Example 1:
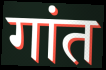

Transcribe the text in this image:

गांत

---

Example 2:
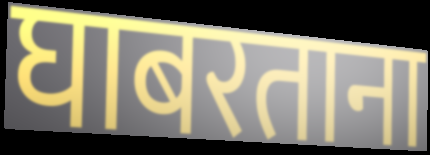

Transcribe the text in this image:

घाबरताना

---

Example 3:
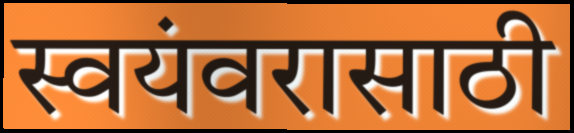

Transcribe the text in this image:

स्वयंवरासाठी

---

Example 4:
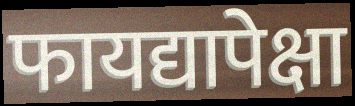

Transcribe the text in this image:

फायद्यापेक्षा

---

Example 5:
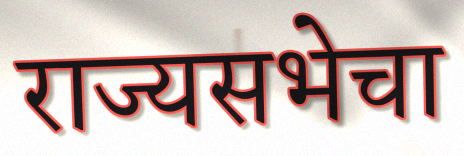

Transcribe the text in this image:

राज्यसभेचा